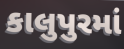
કાલુપુરમાં